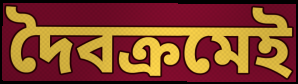
দৈবক্রমেই